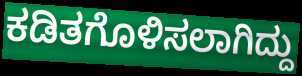
ಕಡಿತಗೊಳಿಸಲಾಗಿದ್ದು